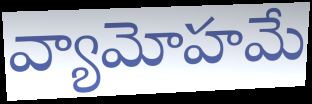
వ్యామోహమే